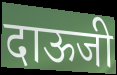
दाऊजी